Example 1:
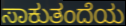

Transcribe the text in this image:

ಸಾಕುತಂದೆಯ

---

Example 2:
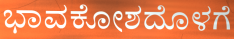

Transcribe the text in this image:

ಭಾವಕೋಶದೊಳಗೆ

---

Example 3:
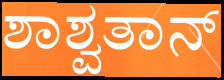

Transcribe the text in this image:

ಶಾಶ್ವತಾನ್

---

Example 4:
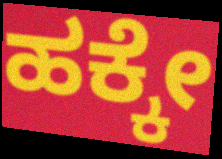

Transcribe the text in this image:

ಹಕ್ಕೇ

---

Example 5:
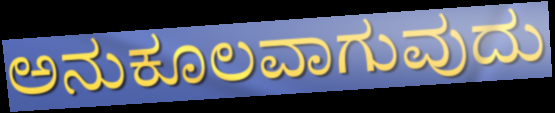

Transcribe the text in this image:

ಅನುಕೂಲವಾಗುವುದು